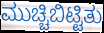
ಮುಚ್ಚಿಬಿಟ್ಟಿತು